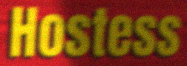
Hostess